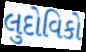
લુદોવિકો